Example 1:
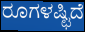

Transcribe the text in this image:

ರೂಗಳಷ್ಟಿದೆ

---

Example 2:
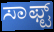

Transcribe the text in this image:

ಸಾಫ್ಟ್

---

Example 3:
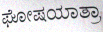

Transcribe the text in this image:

ಘೋಷಯಾತ್ರಾ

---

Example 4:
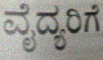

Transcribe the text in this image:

ವೈದ್ಯರಿಗೆ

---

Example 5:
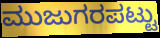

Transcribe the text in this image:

ಮುಜುಗರಪಟ್ಟು